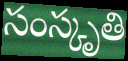
సంస్కృతి